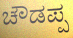
ಚೌಡಪ್ಪ